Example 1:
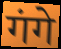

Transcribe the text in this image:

गंगे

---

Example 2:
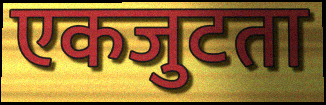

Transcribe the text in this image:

एकजुटता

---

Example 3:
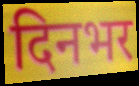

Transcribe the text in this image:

दिनभर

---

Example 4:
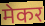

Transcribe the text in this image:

मेकर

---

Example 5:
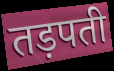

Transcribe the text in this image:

तड़पती